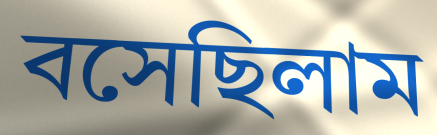
বসেছিলাম